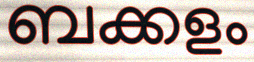
ബക്കളം